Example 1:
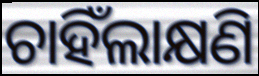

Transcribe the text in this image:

ଚାହିଁଲାକ୍ଷଣି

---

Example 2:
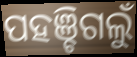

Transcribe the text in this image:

ପହଞ୍ଚିଗଲୁଁ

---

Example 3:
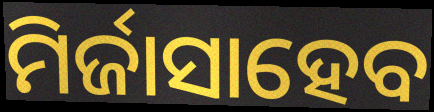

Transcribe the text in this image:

ମିର୍ଜାସାହେବ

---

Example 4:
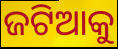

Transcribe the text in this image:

ଜଟିଆକୁ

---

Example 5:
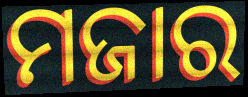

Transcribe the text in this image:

ମଜାର